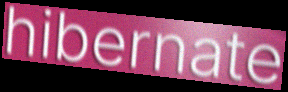
hibernate